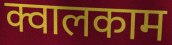
क्वालकाम